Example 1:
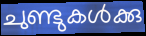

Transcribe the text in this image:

ചുണ്ടുകൾക്കു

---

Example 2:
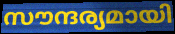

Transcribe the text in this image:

സൗന്ദര്യമായി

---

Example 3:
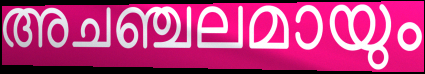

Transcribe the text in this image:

അചഞ്ചലമായും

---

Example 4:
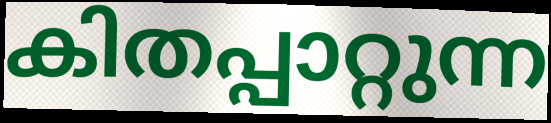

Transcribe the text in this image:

കിതപ്പാറ്റുന്ന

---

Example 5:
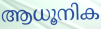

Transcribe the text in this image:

ആധൂനിക